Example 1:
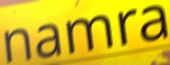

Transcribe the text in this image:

namra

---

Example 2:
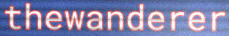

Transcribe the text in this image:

thewanderer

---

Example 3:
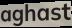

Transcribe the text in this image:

aghast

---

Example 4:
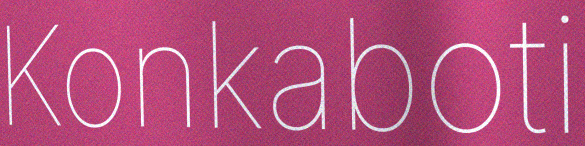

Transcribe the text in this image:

Konkaboti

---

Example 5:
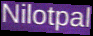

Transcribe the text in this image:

Nilotpal